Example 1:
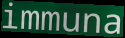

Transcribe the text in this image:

immuna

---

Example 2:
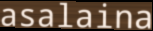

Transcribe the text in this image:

asalaina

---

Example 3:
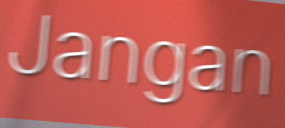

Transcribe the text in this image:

Jangan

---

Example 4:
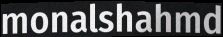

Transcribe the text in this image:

monalshahmd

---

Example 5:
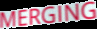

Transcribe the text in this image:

MERGING